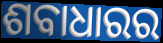
ଶବାଧାରର